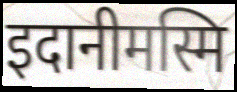
इदानीमस्मि